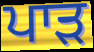
ਪਾੜ